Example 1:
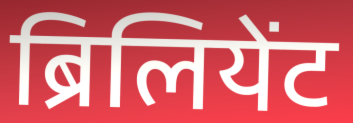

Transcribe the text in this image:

ब्रिलियेंट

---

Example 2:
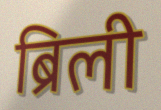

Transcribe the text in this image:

ब्रिली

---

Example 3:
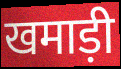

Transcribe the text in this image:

खमाड़ी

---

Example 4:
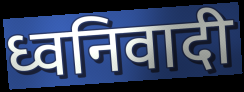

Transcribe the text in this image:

ध्वनिवादी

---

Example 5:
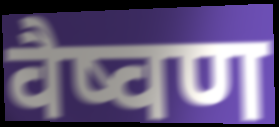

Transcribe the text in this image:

वैष्वण